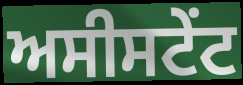
ਅਸੀਸਟੇਂਟ